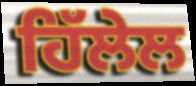
ਹਿੱਲੇਲ